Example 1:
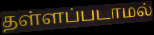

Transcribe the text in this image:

தள்ளப்படாமல்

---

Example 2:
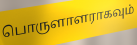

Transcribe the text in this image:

பொருளாளராகவும்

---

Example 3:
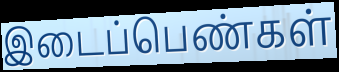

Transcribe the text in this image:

இடைப்பெண்கள்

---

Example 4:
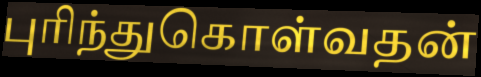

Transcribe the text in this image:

புரிந்துகொள்வதன்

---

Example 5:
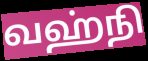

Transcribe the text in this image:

வஹ்நி